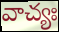
వాచ్యః